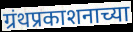
ग्रंथप्रकाशनाच्या